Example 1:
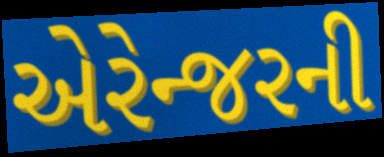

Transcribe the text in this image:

એરેન્જરની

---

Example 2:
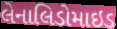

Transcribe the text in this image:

લેનાલિડોમાઇડ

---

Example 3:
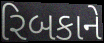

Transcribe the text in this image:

રિબકાને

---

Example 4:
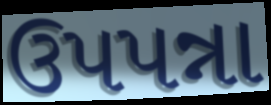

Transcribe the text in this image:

ઉપપન્ના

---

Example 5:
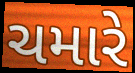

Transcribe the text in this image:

ચમારે